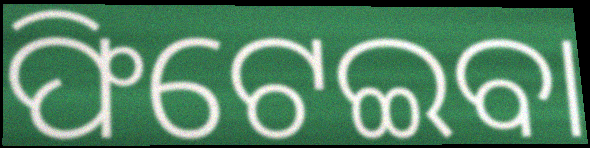
ଫିଟେଇବା